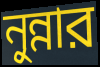
নুন্নার